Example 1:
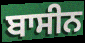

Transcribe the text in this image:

ਬਾਸੀਨ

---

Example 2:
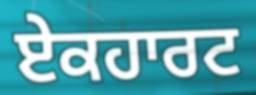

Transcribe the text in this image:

ਏਕਹਾਰਟ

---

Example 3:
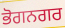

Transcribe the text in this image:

ਭੋਗਨਗਰ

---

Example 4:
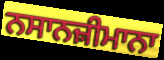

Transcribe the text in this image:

ਨਸਾਨਜ਼ੀਮਾਨਾ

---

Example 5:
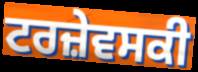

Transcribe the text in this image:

ਟਰਜ਼ੇਵਸਕੀ